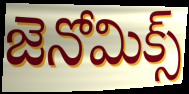
జెనోమిక్స్